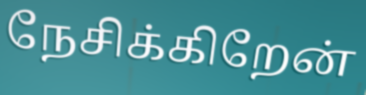
நேசிக்கிறேன்